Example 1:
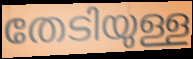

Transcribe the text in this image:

തേടിയുള്ള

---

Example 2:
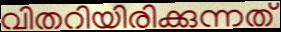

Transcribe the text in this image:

വിതറിയിരിക്കുന്നത്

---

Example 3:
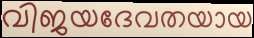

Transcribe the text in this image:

വിജയദേവതയായ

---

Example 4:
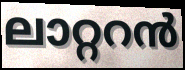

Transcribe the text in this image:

ലാറ്ററൻ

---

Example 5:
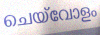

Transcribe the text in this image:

ചെയ്‌വോളം